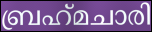
ബ്രഹ്‌മചാരി